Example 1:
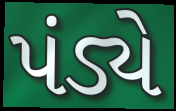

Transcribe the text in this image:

પંડ્યે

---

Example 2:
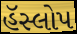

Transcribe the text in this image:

હૅસ્લોપ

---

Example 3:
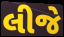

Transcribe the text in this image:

લીજે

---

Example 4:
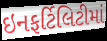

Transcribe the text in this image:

ઇનફર્ટિલિટીમાં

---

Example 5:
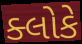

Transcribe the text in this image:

ક્લોકે